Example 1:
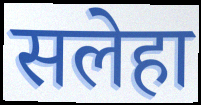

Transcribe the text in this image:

सलेहा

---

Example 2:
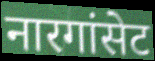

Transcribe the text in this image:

नारगांसेट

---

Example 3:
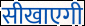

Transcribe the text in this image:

सीखाएगी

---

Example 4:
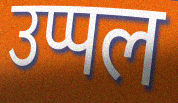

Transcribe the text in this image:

उप्पल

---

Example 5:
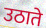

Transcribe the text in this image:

उठाते